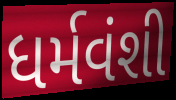
ધર્મવંશી